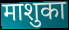
माशुका